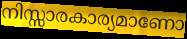
നിസ്സാരകാര്യമാണോ